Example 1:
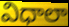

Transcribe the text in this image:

విధాలా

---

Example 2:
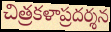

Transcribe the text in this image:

చిత్రకళాప్రదర్శన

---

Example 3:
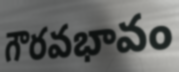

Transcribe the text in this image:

గౌరవభావం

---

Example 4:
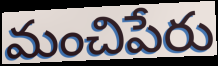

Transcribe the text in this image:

మంచిపేరు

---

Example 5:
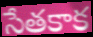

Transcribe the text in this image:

సేతకాక